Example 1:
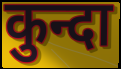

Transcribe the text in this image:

कुन्दा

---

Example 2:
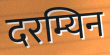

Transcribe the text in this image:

दरम्यिन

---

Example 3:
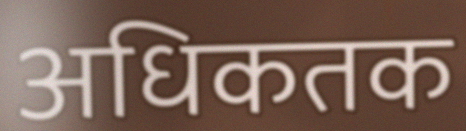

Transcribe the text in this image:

अधिकतक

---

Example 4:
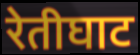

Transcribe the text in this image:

रेतीघाट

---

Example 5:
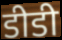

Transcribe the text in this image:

डीडी